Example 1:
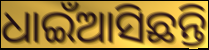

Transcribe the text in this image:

ଧାଇଁଆସିଛନ୍ତି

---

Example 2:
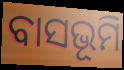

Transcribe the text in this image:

ବାସଭୂମି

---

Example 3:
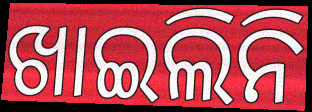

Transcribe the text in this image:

ଖାଇଲିନି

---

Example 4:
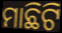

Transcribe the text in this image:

ମାଛିଟି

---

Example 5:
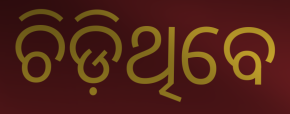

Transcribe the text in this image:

ଚିଡ଼ିଥିବେ